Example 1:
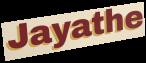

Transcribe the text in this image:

Jayathe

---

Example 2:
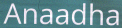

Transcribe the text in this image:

Anaadha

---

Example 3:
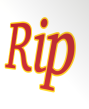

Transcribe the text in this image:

Rip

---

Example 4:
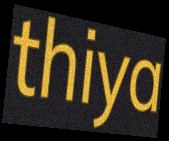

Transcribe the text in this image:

thiya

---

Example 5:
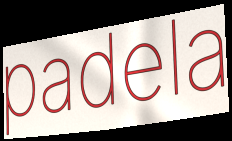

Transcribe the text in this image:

padela